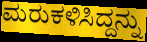
ಮರುಕಳಿಸಿದ್ದನ್ನು